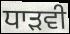
ਧਾੜਵੀ